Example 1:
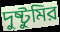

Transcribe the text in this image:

দুষ্টুমির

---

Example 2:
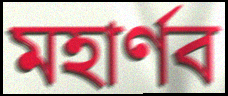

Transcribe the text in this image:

মহার্ণব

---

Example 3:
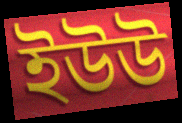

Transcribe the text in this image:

ইউউ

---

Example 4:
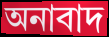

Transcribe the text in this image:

অনাবাদ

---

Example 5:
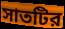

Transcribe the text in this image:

সাতটির